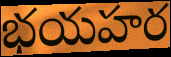
భయహర